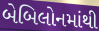
બેબિલોનમાંથી